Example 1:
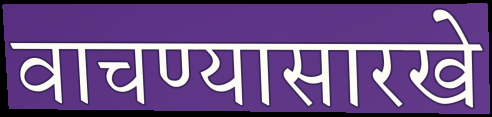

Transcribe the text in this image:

वाचण्यासारखे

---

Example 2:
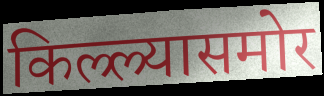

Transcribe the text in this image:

किल्ल्यासमोर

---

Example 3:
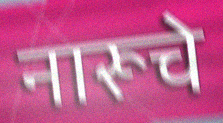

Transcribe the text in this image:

नारूचे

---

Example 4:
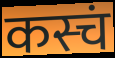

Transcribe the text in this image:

कस्चं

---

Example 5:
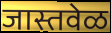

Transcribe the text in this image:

जास्तवेळ